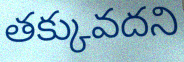
తక్కువదని